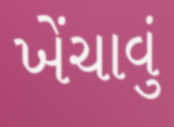
ખેંચાવું